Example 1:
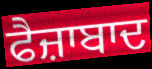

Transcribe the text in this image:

ਫੈਜ਼ਾਬਾਦ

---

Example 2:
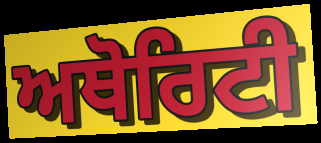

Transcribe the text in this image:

ਅਥੋਰਿਟੀ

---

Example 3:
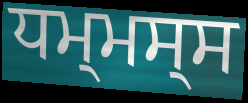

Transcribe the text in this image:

ਧਮ੍ਮਸ੍ਸ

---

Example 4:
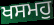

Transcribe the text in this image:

ਖਸਮਹੁ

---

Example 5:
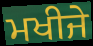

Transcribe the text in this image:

ਮਖੀਜੇ